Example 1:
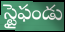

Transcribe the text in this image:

స్టైఫండు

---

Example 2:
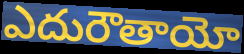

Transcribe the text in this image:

ఎదురౌతాయో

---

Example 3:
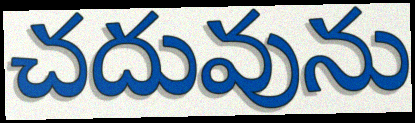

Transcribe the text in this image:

చదువును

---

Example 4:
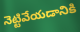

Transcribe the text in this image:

నెట్టివేయడానికి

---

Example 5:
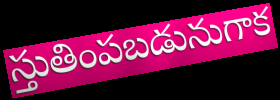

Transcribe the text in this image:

స్తుతింపబడునుగాక